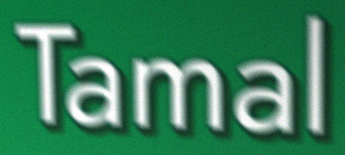
Tamal